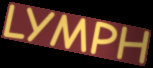
LYMPH